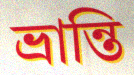
ভ্রান্তি